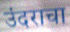
उंदराचा